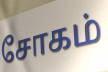
சோகம்